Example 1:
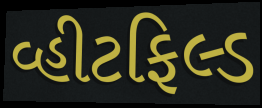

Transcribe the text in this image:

વ્હીટફિલ્ડ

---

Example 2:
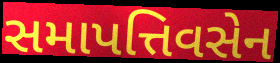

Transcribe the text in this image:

સમાપત્તિવસેન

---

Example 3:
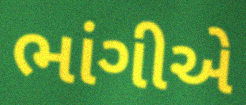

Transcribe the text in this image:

ભાંગીએ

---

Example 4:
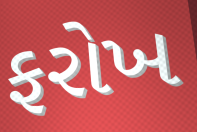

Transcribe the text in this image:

ફરોખ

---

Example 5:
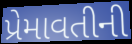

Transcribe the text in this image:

પ્રેમાવતીની